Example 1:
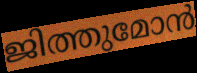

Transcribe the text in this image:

ജിത്തുമോൻ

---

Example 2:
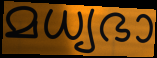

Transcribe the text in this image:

മധ്യഭാ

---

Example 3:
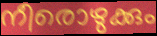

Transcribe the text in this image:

നീരൊഴുക്കും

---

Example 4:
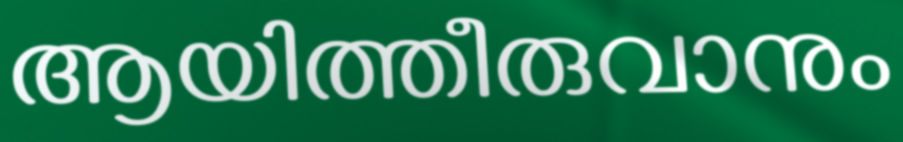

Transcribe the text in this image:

ആയിത്തീരുവാനും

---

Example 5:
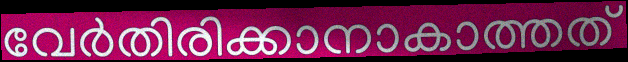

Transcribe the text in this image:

വേർതിരിക്കാനാകാത്തത്